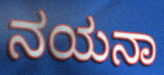
ನಯನಾ